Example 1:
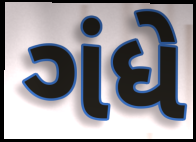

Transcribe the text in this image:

ગંધે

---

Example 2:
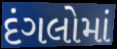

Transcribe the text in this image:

દંગલોમાં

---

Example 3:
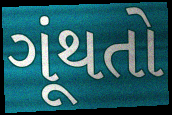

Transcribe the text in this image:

ગૂંથતો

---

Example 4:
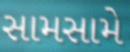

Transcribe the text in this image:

સામસામે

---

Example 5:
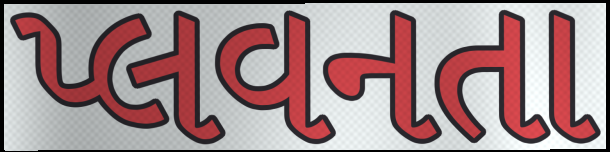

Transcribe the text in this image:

પ્લવનતા